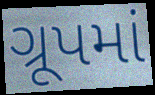
ગ્રૂપમાં